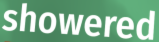
showered